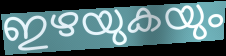
ഇഴയുകയും